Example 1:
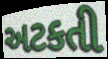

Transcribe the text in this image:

અટકતી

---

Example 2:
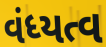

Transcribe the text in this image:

વંધ્યત્વ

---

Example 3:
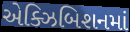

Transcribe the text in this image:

એક્ઝિબિશનમાં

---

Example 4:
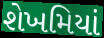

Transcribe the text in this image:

શેખમિયાં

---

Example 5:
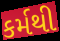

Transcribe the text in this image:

કર્મથી